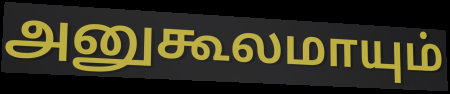
அனுகூலமாயும்